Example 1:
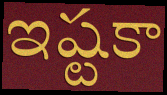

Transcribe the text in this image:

ఇష్టకా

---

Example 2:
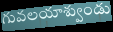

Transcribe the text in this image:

గువలయాశ్వుండు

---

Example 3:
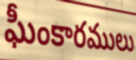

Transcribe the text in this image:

ఘీంకారములు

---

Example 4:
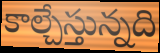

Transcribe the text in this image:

కాల్చేస్తున్నది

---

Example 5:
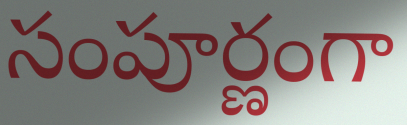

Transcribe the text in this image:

సంపూర్ణంగా